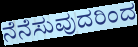
ನೆನೆಸುವುದರಿಂದ